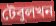
টেবুলখন